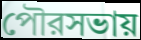
পৌরসভায়